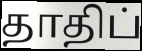
தாதிப்